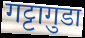
गट्टागुडा